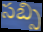
సబ్సి